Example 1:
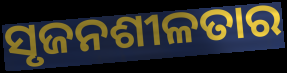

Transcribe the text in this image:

ସୃଜନଶୀଳତାର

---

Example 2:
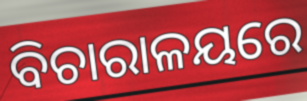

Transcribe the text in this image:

ବିଚାରାଳୟରେ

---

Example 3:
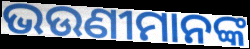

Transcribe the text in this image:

ଭଉଣୀମାନଙ୍କ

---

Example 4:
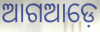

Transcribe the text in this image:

ଆଗଆଡ଼େ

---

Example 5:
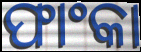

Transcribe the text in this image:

ଫାଂକା